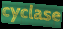
cyclase